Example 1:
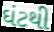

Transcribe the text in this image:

ઘંટથી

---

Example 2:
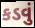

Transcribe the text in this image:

કડવું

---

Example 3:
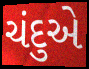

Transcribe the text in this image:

ચંદુએ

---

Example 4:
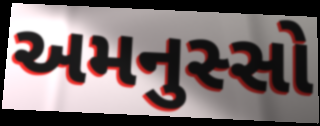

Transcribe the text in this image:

અમનુસ્સો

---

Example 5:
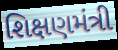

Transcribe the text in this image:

શિક્ષણમંત્રી